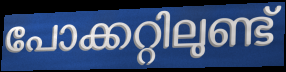
പോക്കറ്റിലുണ്ട്